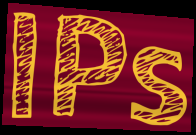
IPs